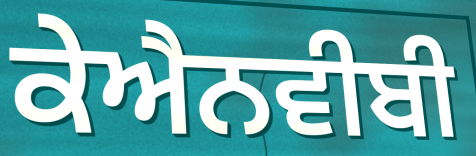
ਕੇਐਨਵੀਬੀ